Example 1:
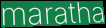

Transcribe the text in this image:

maratha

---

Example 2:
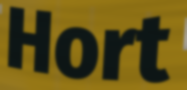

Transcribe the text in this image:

Hort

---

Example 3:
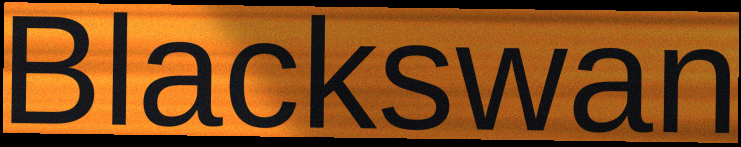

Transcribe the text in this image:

Blackswan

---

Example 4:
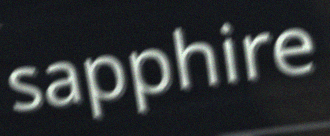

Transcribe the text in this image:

sapphire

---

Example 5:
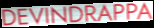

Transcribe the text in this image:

DEVINDRAPPA